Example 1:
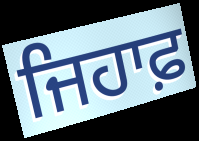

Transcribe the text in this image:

ਜਿਹਾਫ਼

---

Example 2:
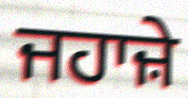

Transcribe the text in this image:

ਜਹਾਜ਼ੇ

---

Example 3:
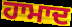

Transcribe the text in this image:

ਹਾਮਾਦ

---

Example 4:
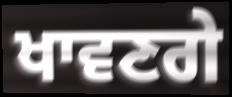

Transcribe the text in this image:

ਖਾਵਣਗੇ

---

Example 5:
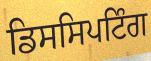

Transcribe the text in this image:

ਡਿਸਸਿਪਟਿੰਗ